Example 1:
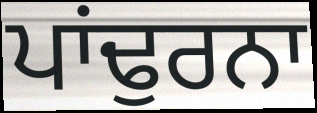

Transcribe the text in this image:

ਪਾਂਢੁਰਨਾ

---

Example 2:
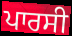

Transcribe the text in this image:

ਪਾਰਸੀ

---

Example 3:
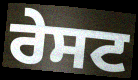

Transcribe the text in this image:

ਰੇਸਟ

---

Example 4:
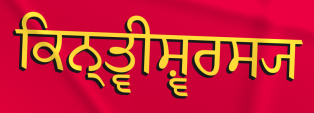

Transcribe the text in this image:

ਕਿਨ੍ਤ੍ਵੀਸ਼੍ਵਰਸ੍ਯ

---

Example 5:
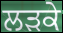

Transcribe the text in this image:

ਲਡ਼ਕੇ